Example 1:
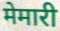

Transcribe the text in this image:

मेमारी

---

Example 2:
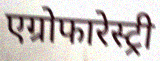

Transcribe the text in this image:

एग्रोफारेस्ट्री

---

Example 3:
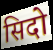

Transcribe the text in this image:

सिदो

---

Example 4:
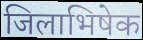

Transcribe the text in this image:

जिलाभिषेक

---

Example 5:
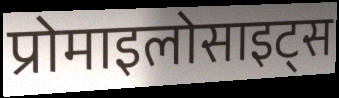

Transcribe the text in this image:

प्रोमाइलोसाइट्स